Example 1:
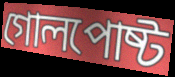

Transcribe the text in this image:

গোলপোষ্ট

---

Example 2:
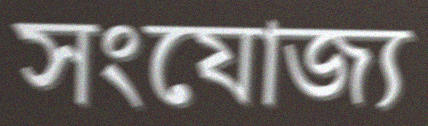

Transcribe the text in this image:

সংযোজ্য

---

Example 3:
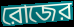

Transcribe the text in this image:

রোজের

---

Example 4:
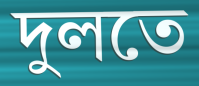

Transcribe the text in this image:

দুলতে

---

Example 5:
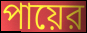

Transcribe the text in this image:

পায়ের